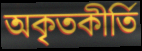
অকৃতকীর্তি